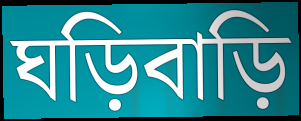
ঘড়িবাড়ি